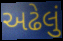
અઢેલું